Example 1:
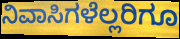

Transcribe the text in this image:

ನಿವಾಸಿಗಳೆಲ್ಲರಿಗೂ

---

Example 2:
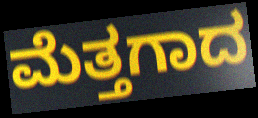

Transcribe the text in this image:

ಮೆತ್ತಗಾದ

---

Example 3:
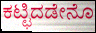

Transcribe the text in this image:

ಕಟ್ಟಿದಡೇನೊ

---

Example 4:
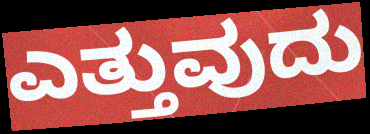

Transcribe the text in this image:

ಎತ್ತುವುದು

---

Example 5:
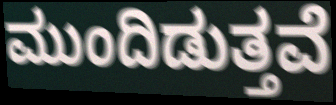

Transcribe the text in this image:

ಮುಂದಿಡುತ್ತವೆ